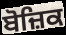
ਬੋਜ਼ਿਕ